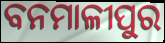
ବନମାଳୀପୁର